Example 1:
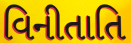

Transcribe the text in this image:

વિનીતાતિ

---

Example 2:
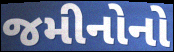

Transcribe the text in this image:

જમીનોનો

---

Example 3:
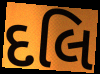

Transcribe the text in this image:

દલિ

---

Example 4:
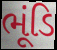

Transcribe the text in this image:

ભૂંડિ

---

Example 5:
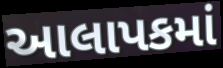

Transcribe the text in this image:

આલાપકમાં